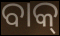
ବାକ୍